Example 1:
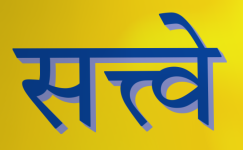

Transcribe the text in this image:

सत्त्वे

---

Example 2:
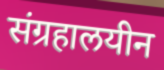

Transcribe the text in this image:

संग्रहालयीन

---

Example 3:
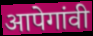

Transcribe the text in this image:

आपेगांवी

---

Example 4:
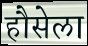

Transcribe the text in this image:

हौसेला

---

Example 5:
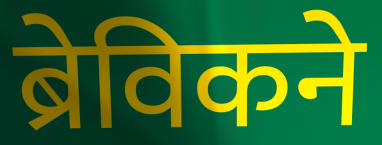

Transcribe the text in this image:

ब्रेविकने